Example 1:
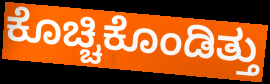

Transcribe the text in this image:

ಕೊಚ್ಚಿಕೊಂಡಿತ್ತು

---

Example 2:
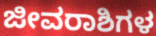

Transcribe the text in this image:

ಜೀವರಾಶಿಗಳ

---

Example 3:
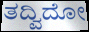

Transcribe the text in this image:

ತದ್ವಿದೋ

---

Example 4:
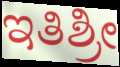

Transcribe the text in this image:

ಇತಿಶ್ರೀ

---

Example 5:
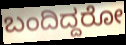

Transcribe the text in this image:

ಬಂದಿದ್ದರೋ